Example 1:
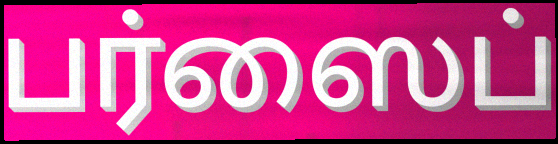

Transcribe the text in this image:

பர்ஸைப்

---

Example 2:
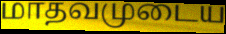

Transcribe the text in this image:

மாதவமுடைய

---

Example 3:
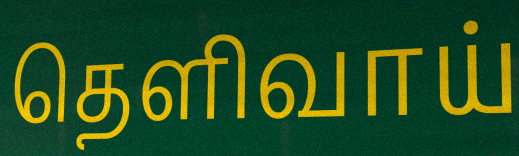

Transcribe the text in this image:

தெளிவாய்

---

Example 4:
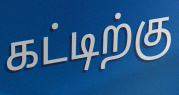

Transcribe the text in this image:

கட்டிற்கு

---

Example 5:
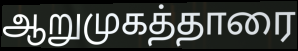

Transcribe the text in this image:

ஆறுமுகத்தாரை